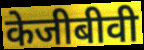
केजीबीवी